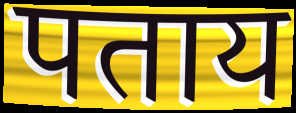
पताय